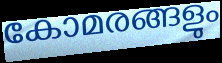
കോമരങ്ങളും